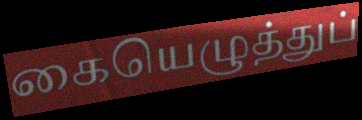
கையெழுத்துப்